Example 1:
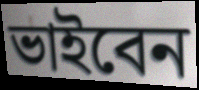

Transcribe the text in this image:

ভাইবেন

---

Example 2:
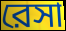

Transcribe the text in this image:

রেসা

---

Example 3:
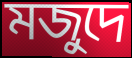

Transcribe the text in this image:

মজুদে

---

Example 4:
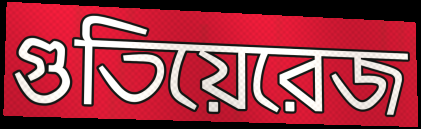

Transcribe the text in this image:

গুতিয়েরেজ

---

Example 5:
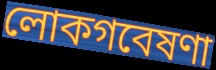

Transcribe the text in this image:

লোকগবেষণা